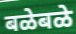
बळेबळे